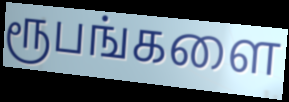
ரூபங்களை